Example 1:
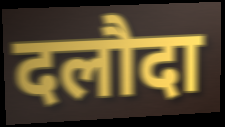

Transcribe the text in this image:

दलौदा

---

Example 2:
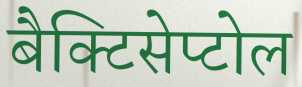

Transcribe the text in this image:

बैक्टिसेप्टोल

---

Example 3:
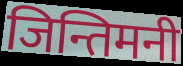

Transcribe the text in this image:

जिन्तिमनी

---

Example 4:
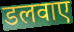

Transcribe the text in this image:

डलवाए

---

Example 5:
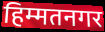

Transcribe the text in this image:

हिम्मतनगर